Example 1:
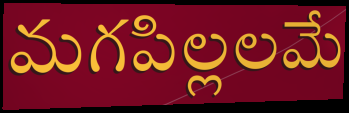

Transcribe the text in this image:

మగపిల్లలమే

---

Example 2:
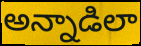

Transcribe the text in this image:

అన్నాడిలా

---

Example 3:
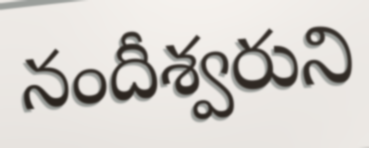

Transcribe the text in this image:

నందీశ్వరుని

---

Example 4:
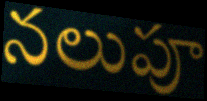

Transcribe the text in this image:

నలుపూ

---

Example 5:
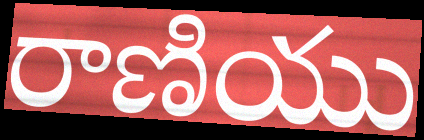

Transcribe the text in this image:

రాణియు